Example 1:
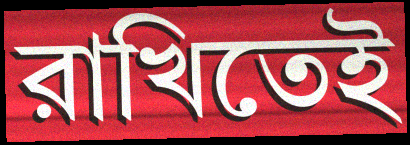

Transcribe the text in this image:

রাখিতেই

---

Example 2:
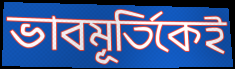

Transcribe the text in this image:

ভাবমূর্তিকেই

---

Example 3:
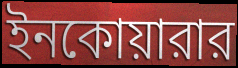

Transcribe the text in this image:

ইনকোয়ারার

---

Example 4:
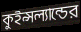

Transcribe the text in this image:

কুইন্সল্যান্ডের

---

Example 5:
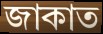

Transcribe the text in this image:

জাকাত